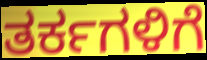
ತರ್ಕಗಳಿಗೆ